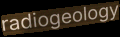
radiogeology